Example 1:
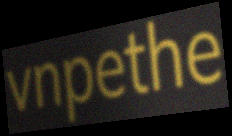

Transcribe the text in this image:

vnpethe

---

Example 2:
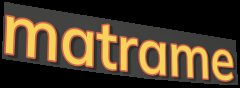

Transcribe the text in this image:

matrame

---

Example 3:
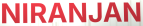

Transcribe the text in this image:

NIRANJAN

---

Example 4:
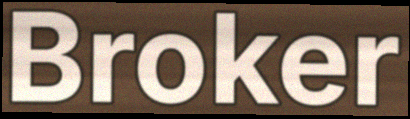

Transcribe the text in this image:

Broker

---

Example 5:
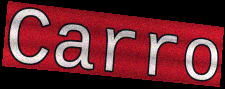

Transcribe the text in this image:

Carro